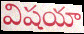
విషయా